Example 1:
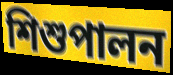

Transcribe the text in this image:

শিশুপালন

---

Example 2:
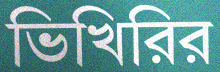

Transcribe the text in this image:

ভিখিরির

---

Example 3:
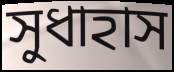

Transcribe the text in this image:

সুধাহাস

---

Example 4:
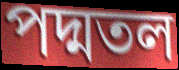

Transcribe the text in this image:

পদ্মতল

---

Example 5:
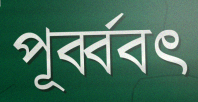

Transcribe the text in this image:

পূর্ব্ববৎ